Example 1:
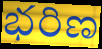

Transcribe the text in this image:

భరిణ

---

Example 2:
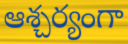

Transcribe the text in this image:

ఆశ్చర్యంగా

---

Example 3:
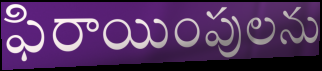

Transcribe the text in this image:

ఫిరాయింపులను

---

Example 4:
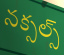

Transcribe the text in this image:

నక్సల్స్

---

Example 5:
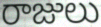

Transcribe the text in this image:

రాజులు